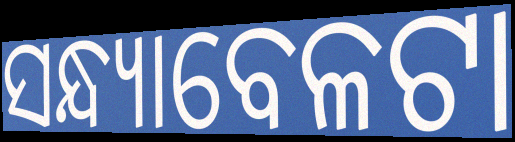
ସନ୍ଧ୍ୟାବେଳଟା